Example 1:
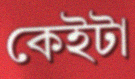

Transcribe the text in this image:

কেইটা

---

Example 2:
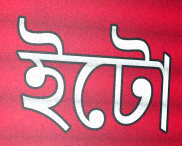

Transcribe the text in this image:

ইটো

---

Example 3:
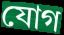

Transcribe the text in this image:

যোগ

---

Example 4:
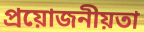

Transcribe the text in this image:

প্ৰয়োজনীয়তা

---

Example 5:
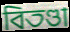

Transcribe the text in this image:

বিতণ্ডা